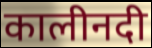
कालीनदी